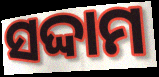
ସଦ୍ଦାମ